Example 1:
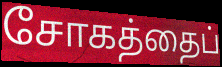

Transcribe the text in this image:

சோகத்தைப்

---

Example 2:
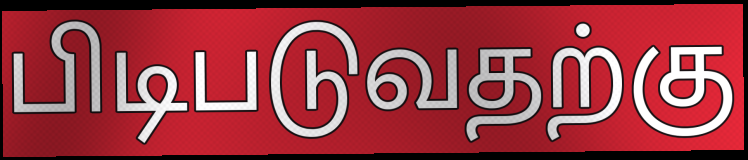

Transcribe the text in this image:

பிடிபடுவதற்கு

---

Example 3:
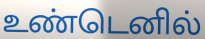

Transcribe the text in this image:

உண்டெனில்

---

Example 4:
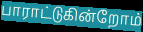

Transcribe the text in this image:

பாராட்டுகின்றோம்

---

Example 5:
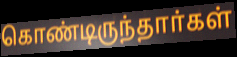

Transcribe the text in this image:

கொண்டிருந்தார்கள்